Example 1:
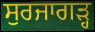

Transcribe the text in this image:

ਸੁਰਜਾਗੜ੍ਹ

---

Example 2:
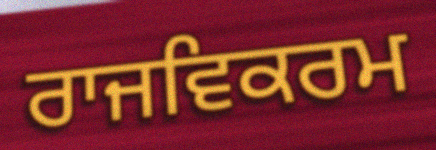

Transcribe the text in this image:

ਰਾਜਵਿਕਰਮ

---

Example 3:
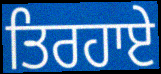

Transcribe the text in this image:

ਤਿਰਹਾਏ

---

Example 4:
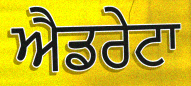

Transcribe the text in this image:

ਐਡਰੇਟਾ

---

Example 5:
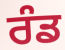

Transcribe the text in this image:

ਰੰਡ